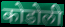
कोडोली